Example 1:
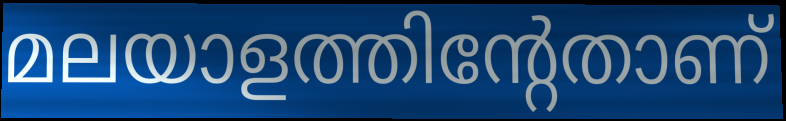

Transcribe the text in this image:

മലയാളത്തിന്റേതാണ്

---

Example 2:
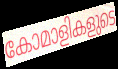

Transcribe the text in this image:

കോമാളികളുടെ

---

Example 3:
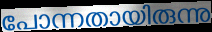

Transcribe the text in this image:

പോന്നതായിരുന്നു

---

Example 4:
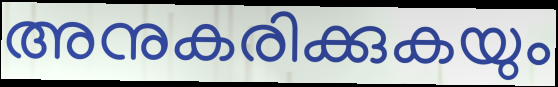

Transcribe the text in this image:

അനുകരിക്കുകയും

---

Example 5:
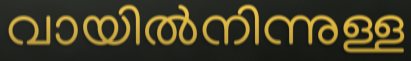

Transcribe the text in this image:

വായിൽനിന്നുള്ള